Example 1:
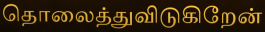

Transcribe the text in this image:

தொலைத்துவிடுகிறேன்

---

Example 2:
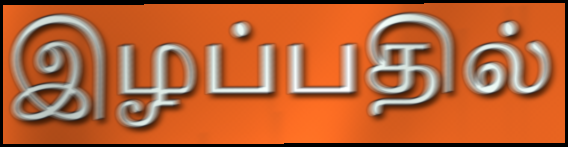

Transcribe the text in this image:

இழப்பதில்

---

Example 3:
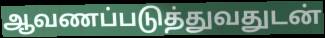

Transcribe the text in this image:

ஆவணப்படுத்துவதுடன்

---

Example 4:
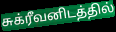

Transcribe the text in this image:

சுக்ரீவனிடத்தில்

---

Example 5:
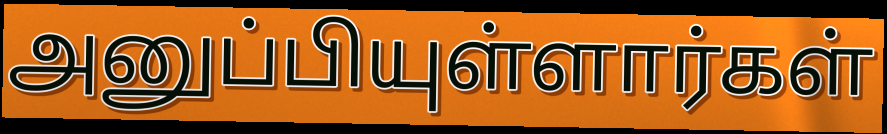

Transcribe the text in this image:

அனுப்பியுள்ளார்கள்